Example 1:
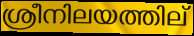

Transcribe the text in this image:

ശ്രീനിലയത്തില്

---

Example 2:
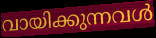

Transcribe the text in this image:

വായിക്കുന്നവൾ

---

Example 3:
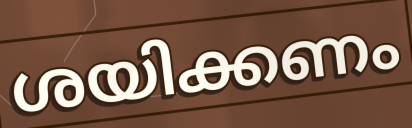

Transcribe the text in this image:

ശയിക്കണം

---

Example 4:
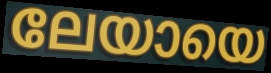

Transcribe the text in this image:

ലേയായെ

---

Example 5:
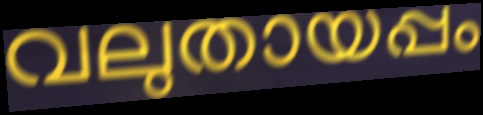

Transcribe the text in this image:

വലുതായപ്പം